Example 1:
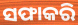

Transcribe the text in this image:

ସଫାକରି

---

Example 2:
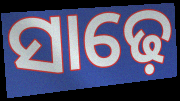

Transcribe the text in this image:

ସାଢ଼େ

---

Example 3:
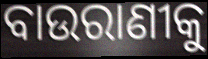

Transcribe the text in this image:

ବାଉରାଣୀକୁ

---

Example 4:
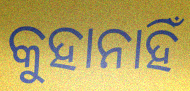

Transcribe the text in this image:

କୁହାନାହିଁ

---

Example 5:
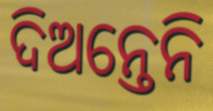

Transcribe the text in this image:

ଦିଅନ୍ତେନି